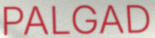
PALGAD